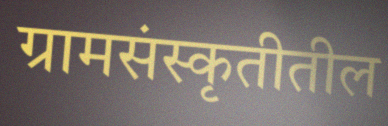
ग्रामसंस्कृतीतील